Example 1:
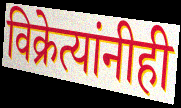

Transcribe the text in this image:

विक्रेत्यांनीही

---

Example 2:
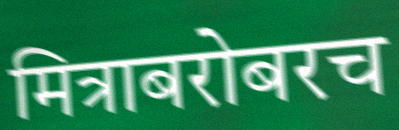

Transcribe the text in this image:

मित्राबरोबरच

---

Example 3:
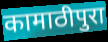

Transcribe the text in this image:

कामाठीपुरा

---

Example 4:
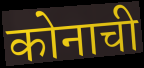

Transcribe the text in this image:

कोनाची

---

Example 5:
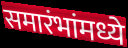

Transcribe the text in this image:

समारंभांमध्ये